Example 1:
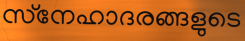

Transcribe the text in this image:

സ്‌നേഹാദരങ്ങളുടെ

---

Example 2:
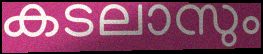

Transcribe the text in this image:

കടലാസും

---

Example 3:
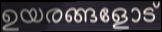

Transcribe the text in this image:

ഉയരങ്ങളോട്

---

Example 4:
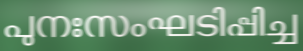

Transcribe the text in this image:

പുനഃസംഘടിപ്പിച്ച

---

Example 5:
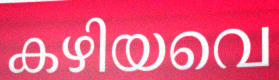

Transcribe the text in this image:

കഴിയവെ